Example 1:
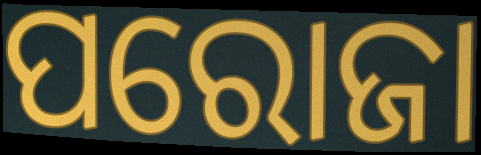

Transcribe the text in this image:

ପରୋଜା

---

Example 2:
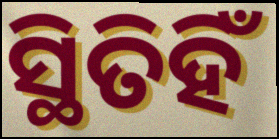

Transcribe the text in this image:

ସ୍ଥିତିହିଁ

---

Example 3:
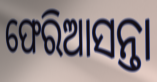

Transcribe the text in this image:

ଫେରିଆସନ୍ତା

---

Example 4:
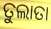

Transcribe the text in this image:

ତୁଲାତା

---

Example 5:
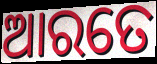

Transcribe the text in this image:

ଆରତେ